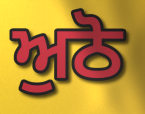
ਅੁਠੋ